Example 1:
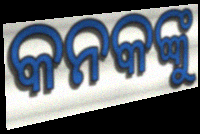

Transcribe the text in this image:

କନକଙ୍କୁ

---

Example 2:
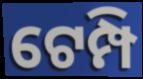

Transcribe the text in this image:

ଟେମ୍ପି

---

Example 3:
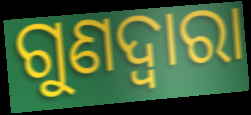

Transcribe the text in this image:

ଗୁଣଦ୍ଵାରା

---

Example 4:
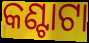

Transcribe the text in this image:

କଣ୍ଟାଟା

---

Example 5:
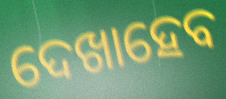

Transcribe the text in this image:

ଦେଖାହେବ